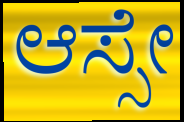
ಆಸ್ಸೇ